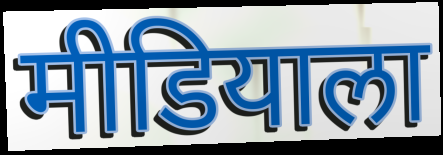
मीडियाला